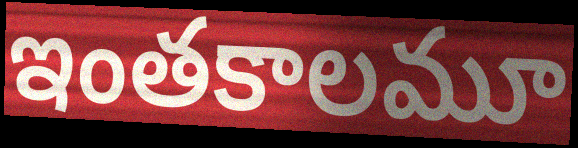
ఇంతకాలమూ